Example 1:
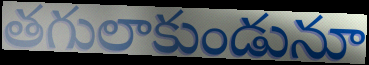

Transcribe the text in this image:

తగులాకుండునూ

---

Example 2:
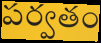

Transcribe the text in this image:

పర్వతం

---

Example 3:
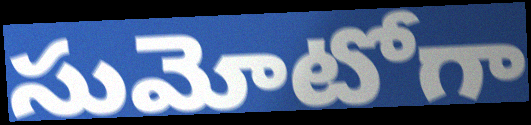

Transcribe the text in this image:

సుమోటోగా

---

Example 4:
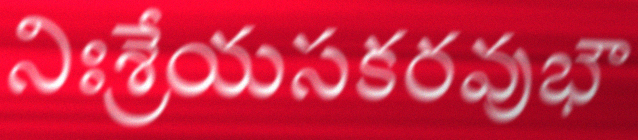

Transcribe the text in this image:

నిఃశ్రేయసకరవుభౌ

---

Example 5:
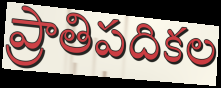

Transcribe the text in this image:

ప్రాతిపదికల